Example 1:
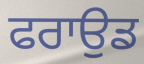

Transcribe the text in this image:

ਫਰਾਉਡ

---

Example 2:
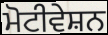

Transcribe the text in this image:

ਮੋਟੀਵੇਸ਼ਨ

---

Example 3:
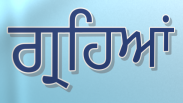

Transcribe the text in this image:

ਗ੍ਰਹਿਆਂ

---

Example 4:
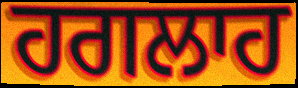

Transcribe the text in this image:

ਹਗਲਾਹ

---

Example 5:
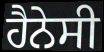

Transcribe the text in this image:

ਹੈਨੇਸੀ